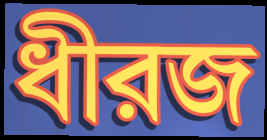
ধীরজ